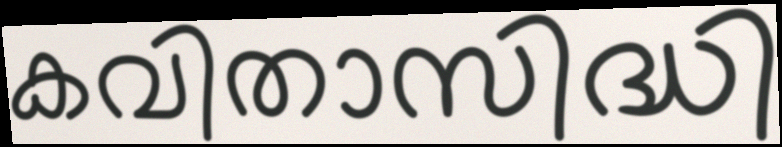
കവിതാസിദ്ധി